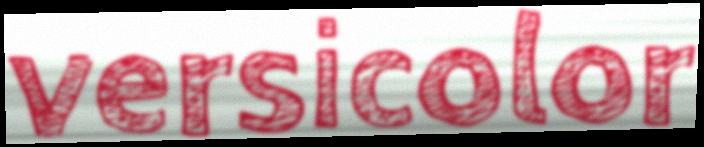
versicolor